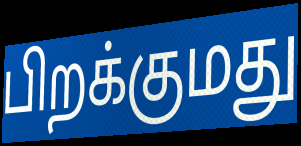
பிறக்குமது